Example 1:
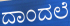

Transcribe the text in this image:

ದಾಂದಲೆ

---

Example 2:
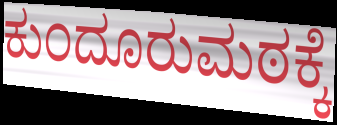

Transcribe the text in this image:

ಕುಂದೂರುಮಠಕ್ಕೆ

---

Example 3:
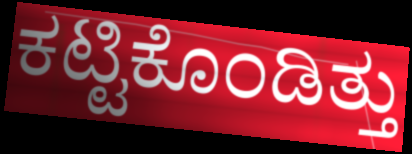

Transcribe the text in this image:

ಕಟ್ಟಿಕೊಂಡಿತ್ತು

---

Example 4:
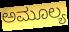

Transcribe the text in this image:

ಅಮೂಲ್ಯ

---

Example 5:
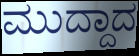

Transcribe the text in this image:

ಮುದ್ದಾದ